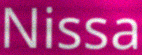
Nissa